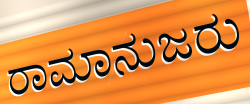
ರಾಮಾನುಜರು